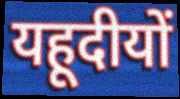
यहूदीयों